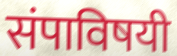
संपाविषयी